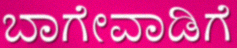
ಬಾಗೇವಾಡಿಗೆ